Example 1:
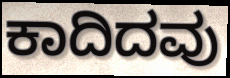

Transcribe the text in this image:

ಕಾದಿದವು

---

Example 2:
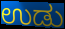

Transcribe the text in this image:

ಉಡು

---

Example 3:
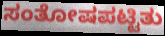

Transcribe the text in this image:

ಸಂತೋಷಪಟ್ಟಿತು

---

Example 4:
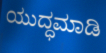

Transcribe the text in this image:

ಯುದ್ಧಮಾಡಿ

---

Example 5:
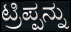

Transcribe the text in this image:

ಟ್ರಿಪ್ಪನ್ನು